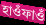
হাওঁফাওঁ